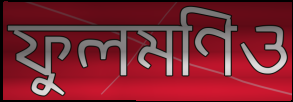
ফুলমণিও